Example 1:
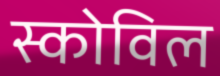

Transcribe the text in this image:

स्कोविल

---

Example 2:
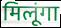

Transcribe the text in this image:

मिलूंगा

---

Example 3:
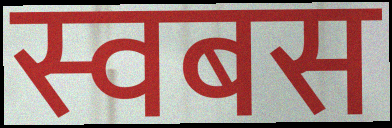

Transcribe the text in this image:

स्वबस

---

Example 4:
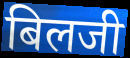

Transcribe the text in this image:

बिलजी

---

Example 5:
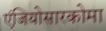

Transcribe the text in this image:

एंजियोसारकोमा